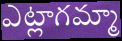
ఎట్లాగమ్మా